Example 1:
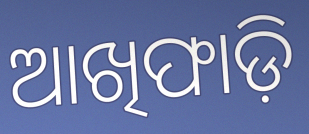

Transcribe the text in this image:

ଆଖିଫାଡ଼ି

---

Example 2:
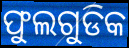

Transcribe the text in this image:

ଫୁଲଗୁଡିକ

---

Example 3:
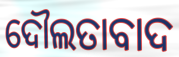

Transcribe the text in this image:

ଦୌଲତାବାଦ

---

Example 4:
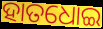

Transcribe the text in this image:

ହାତଧୋଇ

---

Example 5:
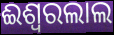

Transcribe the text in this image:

ଈଶ୍ଵରଲାଲ